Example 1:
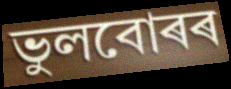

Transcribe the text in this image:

ভুলবোৰৰ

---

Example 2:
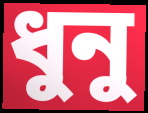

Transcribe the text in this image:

ধুনু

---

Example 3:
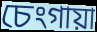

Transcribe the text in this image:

চেংগায়া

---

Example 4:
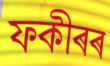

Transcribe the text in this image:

ফকীৰৰ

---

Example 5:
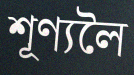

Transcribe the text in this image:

শূণ্যলৈ